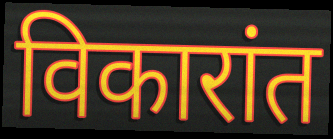
विकारांत